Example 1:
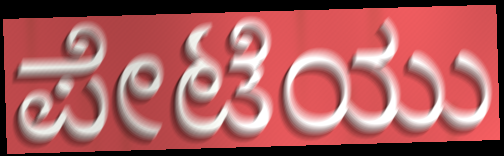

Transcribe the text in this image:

ಪೇಟೆಯು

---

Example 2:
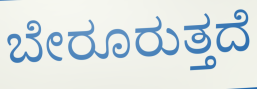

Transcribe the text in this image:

ಬೇರೂರುತ್ತದೆ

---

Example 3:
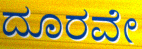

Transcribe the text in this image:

ದೂರವೇ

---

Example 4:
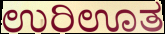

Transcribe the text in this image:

ಉರಿಊತ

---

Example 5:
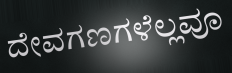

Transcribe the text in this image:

ದೇವಗಣಗಳೆಲ್ಲವೂ